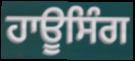
ਹਾਊਸਿੰਗ